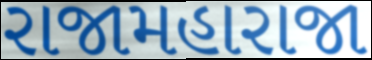
રાજામહારાજા